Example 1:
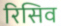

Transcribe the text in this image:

रिसिव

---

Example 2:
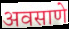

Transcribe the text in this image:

अवसाणे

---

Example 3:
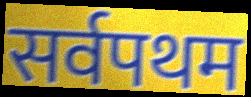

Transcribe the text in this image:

सर्वपथम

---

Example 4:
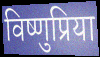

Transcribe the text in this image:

विष्णुप्रिया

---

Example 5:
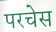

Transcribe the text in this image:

परचेस